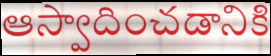
ఆస్వాదించడానికి